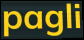
pagli